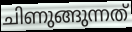
ചിണുങ്ങുന്നത്